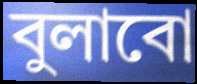
বুলাবো